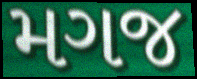
મગજ